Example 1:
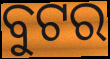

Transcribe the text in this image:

ବୁଟର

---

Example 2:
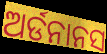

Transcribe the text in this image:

ଅର୍ଡନାନସ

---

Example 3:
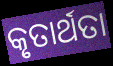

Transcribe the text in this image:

କୃତାର୍ଥତା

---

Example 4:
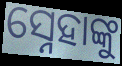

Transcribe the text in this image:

ସ୍ନେହାଙ୍କୁ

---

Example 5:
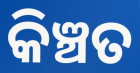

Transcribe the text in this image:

କିଞ୍ଚତ